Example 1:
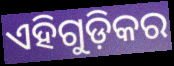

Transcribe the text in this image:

ଏହିଗୁଡ଼ିକର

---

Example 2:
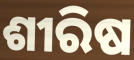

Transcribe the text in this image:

ଶୀରିଷ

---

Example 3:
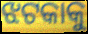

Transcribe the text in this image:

ଝଟକାକୁ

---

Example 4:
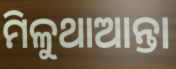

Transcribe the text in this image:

ମିଳୁଥାଆନ୍ତା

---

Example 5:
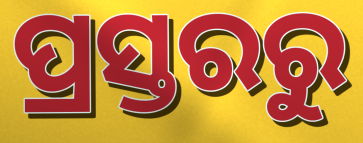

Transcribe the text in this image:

ପ୍ରସ୍ତରରୁ